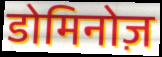
डोमिनोज़